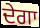
ਦੇਗਾ